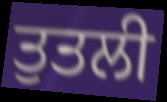
ਤੁਤਲੀ